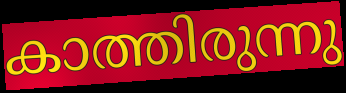
കാത്തിരുന്നു